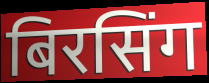
बिरसिंग